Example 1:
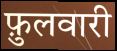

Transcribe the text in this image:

फ़ुलवारी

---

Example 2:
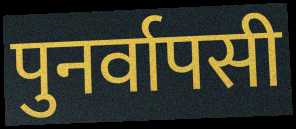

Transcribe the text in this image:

पुनर्वापसी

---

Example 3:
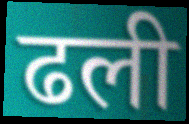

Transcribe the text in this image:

ढली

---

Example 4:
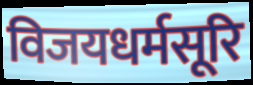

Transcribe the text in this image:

विजयधर्मसूरि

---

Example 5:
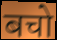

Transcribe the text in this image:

बचो